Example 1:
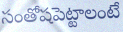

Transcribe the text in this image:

సంతోషపెట్టాలంటే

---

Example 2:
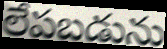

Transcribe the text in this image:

లేపబడును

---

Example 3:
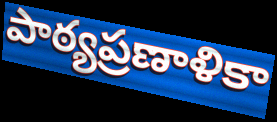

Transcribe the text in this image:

పాఠ్యప్రణాళికా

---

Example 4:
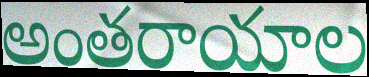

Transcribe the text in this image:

అంతరాయాల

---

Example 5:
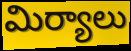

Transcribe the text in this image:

మిర్యాలు